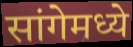
सांगेमध्ये